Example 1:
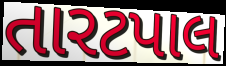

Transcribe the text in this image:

તારટપાલ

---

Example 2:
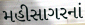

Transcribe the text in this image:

મહીસાગરનાં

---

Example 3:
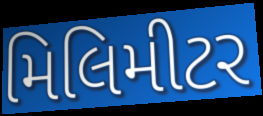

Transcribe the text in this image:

મિલિમીટર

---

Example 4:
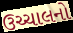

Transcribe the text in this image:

ઉચ્ચાલનો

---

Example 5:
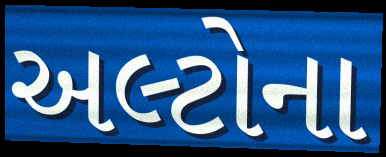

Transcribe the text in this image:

અલ્ટોના